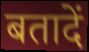
बतादें